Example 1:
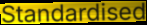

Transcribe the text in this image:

Standardised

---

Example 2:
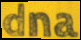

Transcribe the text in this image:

dna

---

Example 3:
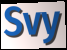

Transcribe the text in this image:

Svy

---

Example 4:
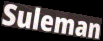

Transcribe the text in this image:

Suleman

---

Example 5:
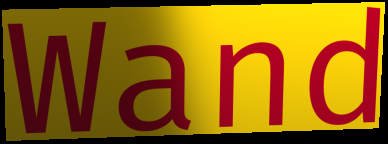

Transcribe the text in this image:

Wand